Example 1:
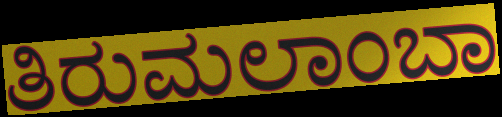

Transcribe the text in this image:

ತಿರುಮಲಾಂಬಾ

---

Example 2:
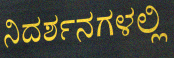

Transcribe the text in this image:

ನಿದರ್ಶನಗಳಲ್ಲಿ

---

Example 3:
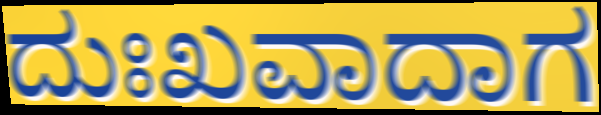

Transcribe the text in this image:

ದುಃಖವಾದಾಗ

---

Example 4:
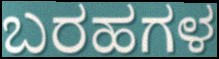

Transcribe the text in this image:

ಬರಹಗಳ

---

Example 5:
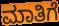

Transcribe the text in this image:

ಮಾತಿಗೆ